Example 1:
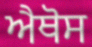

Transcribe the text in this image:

ਐਥੋਸ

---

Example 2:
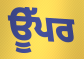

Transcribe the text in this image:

ਊੱਪਰ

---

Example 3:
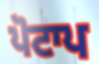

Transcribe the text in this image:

ਪੋਟਾਪ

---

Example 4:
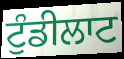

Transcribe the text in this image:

ਟੁੰਡੀਲਾਟ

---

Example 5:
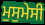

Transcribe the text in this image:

ਮੁਸੁਮੇਸੀ